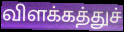
விளக்கத்துச்